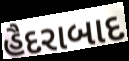
હૈદરાબાદ